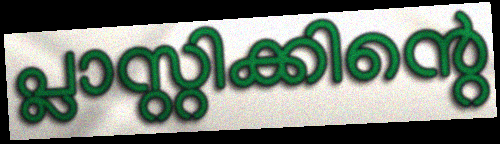
പ്ലാസ്റ്റിക്കിന്റെ